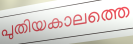
പുതിയകാലത്തെ